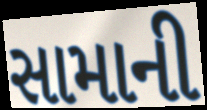
સામાની